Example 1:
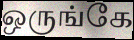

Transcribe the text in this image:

ஒருங்கே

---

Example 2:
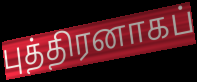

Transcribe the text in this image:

புத்திரனாகப்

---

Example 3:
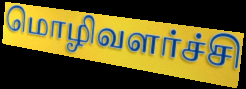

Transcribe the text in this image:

மொழிவளர்ச்சி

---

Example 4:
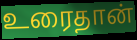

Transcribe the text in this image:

உரைதான்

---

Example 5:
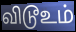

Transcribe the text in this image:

விடூஉம்